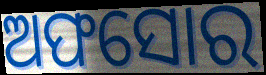
ଅଫସୋର